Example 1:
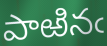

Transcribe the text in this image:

పాఱినఁ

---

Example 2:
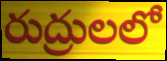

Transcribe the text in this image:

రుద్రులలో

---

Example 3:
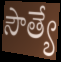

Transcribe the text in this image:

సౌత్యే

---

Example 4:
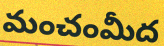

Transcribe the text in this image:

మంచంమీద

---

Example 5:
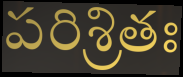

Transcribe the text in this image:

పరిశ్రితః